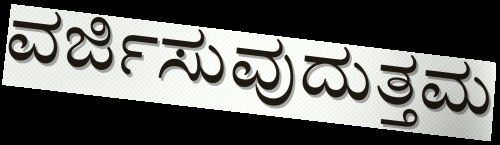
ವರ್ಜಿಸುವುದುತ್ತಮ